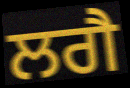
ਲਗੈ